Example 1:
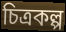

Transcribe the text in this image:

চিত্ৰকল্প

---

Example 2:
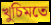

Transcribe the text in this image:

খুচিমতে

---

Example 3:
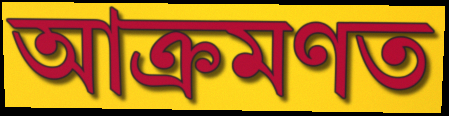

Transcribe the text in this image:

আক্ৰমণত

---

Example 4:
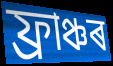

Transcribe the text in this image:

ফ্ৰাঞ্চৰ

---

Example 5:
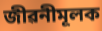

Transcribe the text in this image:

জীৱনীমূলক